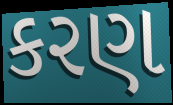
કરણ